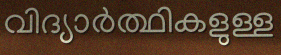
വിദ്യാർത്ഥികളുള്ള